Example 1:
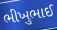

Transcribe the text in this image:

ભીખુભાઈ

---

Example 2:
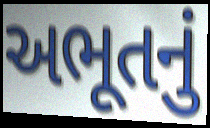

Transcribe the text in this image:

અભૂતનું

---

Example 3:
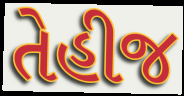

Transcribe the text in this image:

તેહીજ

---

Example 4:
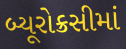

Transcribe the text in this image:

બ્યૂરોક્રસીમાં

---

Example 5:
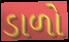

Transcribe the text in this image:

ડાળો